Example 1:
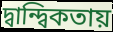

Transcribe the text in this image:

দ্বান্দ্বিকতায়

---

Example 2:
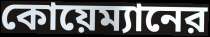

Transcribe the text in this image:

কোয়েম্যানের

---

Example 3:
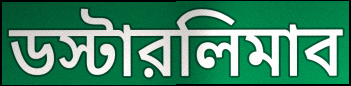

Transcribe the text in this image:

ডস্টারলিমাব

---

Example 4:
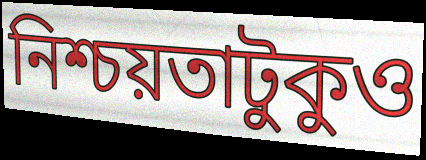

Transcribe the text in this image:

নিশ্চয়তাটুকুও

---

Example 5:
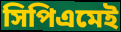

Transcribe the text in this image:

সিপিএমেই